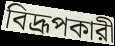
বিদ্রূপকারী